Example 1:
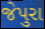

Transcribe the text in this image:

જેપુરા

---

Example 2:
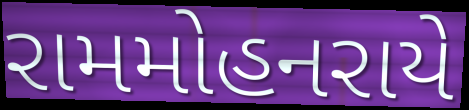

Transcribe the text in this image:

રામમોહનરાયે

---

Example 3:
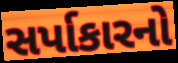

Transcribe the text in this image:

સર્પાકારનો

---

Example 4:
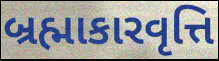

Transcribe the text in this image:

બ્રહ્માકારવૃત્તિ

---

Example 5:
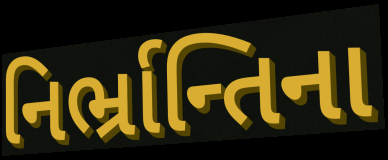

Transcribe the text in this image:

નિર્ભ્રાન્તિના